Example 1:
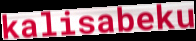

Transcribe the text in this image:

kalisabeku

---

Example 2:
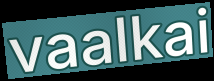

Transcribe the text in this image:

vaalkai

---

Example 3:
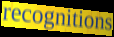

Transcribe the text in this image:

recognitions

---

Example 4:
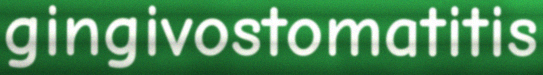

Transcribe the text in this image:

gingivostomatitis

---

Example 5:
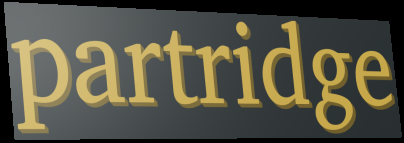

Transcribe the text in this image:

partridge